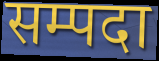
सम्पदा